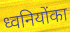
ध्वनियोंका